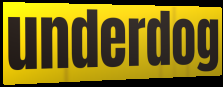
underdog